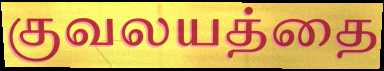
குவலயத்தை